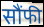
सौंफी